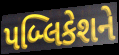
પબ્લિકેશને